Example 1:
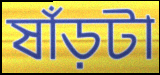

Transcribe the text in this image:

ষাঁড়টা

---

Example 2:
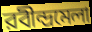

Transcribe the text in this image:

রবীন্দ্রমেলা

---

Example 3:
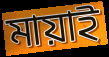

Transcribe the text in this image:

মায়াই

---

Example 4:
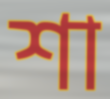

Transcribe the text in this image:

শা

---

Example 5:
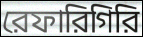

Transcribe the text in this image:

রেফারিগিরি